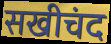
सखीचंद